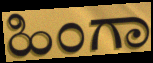
ಹಿಂಗಾ